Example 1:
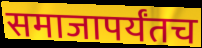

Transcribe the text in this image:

समाजापर्यंतच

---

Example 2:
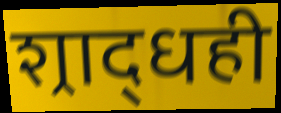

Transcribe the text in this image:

श्राद्धही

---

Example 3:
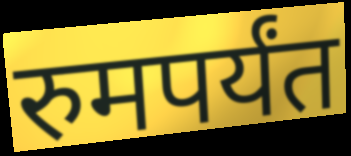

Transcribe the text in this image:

रुमपर्यंत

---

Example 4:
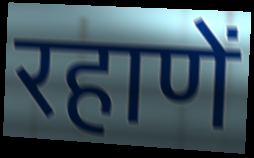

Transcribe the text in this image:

रहाणें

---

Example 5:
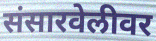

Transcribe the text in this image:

संसारवेलीवर